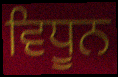
ਵਿਧੂਨ